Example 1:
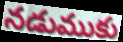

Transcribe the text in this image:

నడుముకు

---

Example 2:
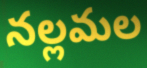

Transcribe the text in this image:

నల్లమల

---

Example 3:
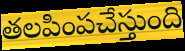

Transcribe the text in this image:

తలపింపచేస్తుంది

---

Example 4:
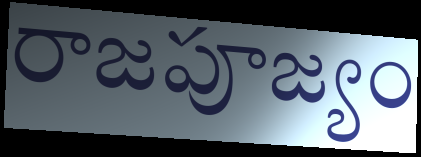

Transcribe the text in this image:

రాజపూజ్యం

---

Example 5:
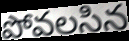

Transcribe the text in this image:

పోవలసిన